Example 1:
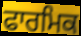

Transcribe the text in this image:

ਫਾਰਮਿਕ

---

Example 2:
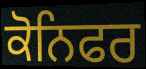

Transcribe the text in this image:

ਕੋਨਿਫਰ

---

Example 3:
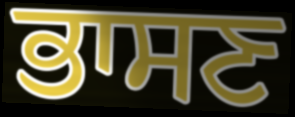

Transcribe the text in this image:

ਭਾਸਣ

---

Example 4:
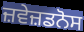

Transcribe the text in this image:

ਜ਼ਵੇਜ਼ਡਨੋਸ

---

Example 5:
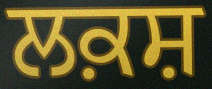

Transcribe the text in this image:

ਲਕ਼ਸ਼